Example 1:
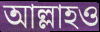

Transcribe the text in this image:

আল্লাহও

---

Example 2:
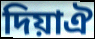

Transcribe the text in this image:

দিয়াঐ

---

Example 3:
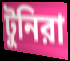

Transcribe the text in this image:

টুনিরা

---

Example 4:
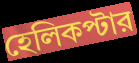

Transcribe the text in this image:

হেলিকপ্টার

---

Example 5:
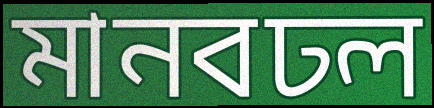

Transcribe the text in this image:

মানবঢল